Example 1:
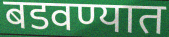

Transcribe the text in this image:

बडवण्यात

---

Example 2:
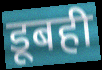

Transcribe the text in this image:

डूबही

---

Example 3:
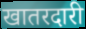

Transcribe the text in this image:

खातरदारी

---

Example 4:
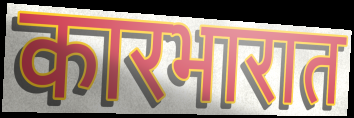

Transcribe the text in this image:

कारभारात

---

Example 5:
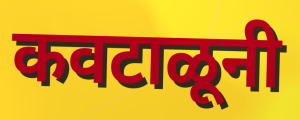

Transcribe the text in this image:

कवटाळूनी